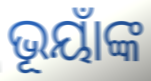
ଭୂୟାଁଙ୍କ